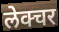
लेक्चर